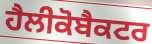
ਹੈਲੀਕੋਬੈਕਟਰ